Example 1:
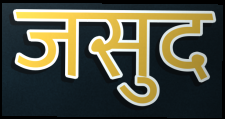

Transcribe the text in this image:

जसुद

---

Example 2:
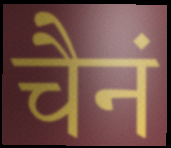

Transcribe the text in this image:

चैनं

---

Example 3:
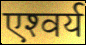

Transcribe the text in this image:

एश्‍वर्य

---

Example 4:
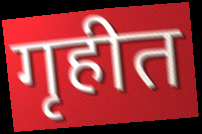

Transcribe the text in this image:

गृहीत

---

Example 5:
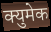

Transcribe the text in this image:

क्युमेक